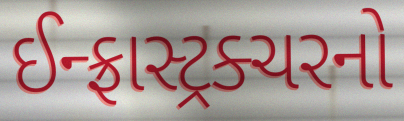
ઈન્ફ્રાસ્ટ્રક્ચરનો